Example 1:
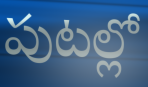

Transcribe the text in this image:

పుటల్లో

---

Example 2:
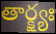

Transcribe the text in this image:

తార్క్ష్యః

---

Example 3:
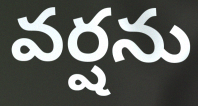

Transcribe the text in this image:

వర్షను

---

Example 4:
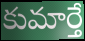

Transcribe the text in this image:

కుమార్తే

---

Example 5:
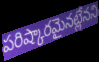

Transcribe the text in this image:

పరిష్కారమైనట్లేనని